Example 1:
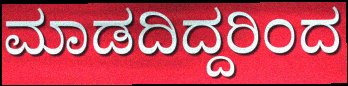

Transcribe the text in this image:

ಮಾಡದಿದ್ದರಿಂದ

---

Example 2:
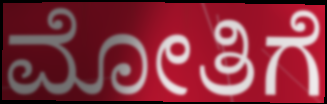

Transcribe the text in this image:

ಮೋತಿಗೆ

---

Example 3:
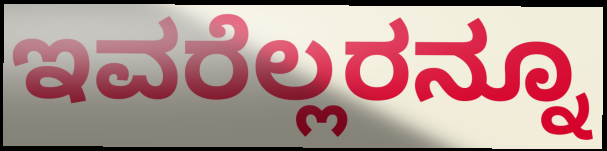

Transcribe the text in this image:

ಇವರೆಲ್ಲರನ್ನೂ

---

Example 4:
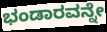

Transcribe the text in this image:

ಭಂಡಾರವನ್ನೇ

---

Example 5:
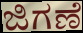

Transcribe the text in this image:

ಜಿಗಣೆ